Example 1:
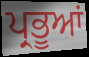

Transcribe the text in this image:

ਪ੍ਰਭੂਆਂ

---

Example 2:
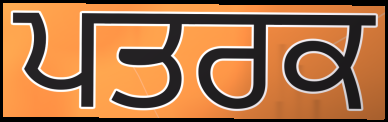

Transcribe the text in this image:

ਪਤਰਕ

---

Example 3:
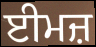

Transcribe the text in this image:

ਈਮਜ਼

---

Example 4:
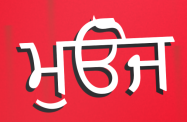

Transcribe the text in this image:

ਮੁਓੋਜ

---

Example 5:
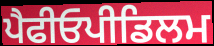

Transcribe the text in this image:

ਪੈਫੀਓਪੀਡਿਲਮ